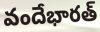
వందేభారత్